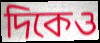
দিকেও